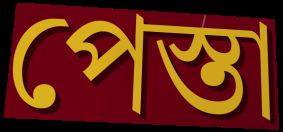
পেস্তা